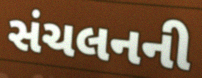
સંચલનની